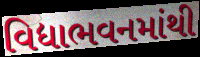
વિદ્યાભવનમાંથી